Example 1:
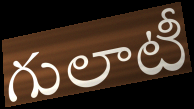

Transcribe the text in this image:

గులాటీ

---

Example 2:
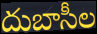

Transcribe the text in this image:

దుబాసీల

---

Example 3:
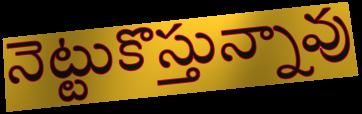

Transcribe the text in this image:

నెట్టుకొస్తున్నావు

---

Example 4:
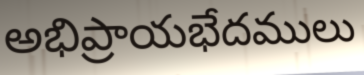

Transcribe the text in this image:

అభిప్రాయభేదములు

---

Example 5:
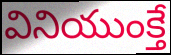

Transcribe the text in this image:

వినియుంక్తే